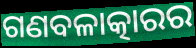
ଗଣବଳାତ୍କାରର